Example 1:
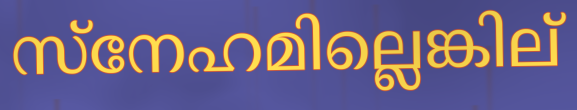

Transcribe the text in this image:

സ്നേഹമില്ലെങ്കില്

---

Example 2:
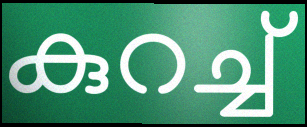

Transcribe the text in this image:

കുറച്ച്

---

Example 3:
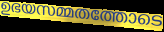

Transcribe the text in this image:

ഉഭയസമ്മതത്തോടെ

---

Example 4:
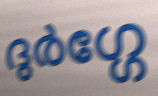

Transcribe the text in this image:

ദുർഗ്ഗേ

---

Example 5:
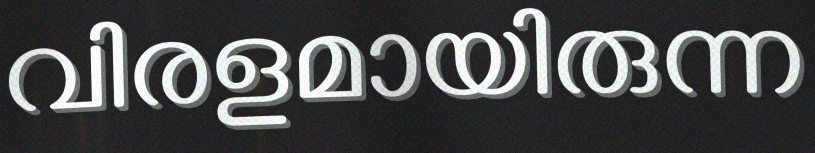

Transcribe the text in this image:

വിരളമായിരുന്ന